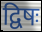
द्विषः